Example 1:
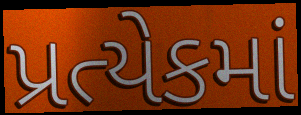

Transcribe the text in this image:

પ્રત્યેકમાં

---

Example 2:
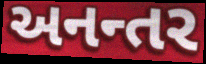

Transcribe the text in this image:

અનન્તર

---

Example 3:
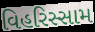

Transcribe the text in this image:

વિહરિસ્સામ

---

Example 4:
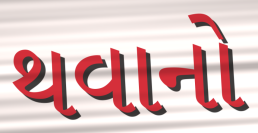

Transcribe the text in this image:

થવાનો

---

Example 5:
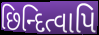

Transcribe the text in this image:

છિન્દિત્વાપિ